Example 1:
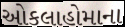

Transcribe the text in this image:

ઓકલાહોમાના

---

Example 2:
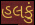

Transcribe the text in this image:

હલકું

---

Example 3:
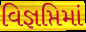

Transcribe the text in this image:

વિજ્ઞપ્તિમાં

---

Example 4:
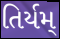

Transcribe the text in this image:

તિર્યમ્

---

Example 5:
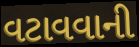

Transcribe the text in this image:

વટાવવાની